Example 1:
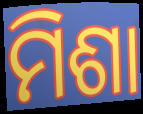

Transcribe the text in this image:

ମିଶା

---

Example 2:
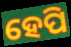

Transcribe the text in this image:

ହେପି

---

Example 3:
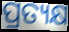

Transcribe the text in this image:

ପ୍ରତ୍ୟକ୍ଷ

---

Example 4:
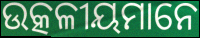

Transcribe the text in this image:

ଉତ୍କଳୀୟମାନେ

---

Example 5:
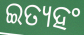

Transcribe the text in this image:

ଇତ୍ୟହଂ